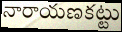
నారాయణకట్టు